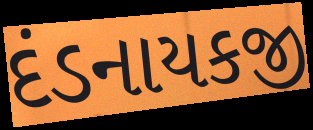
દંડનાયકજી